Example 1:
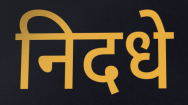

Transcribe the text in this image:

निदधे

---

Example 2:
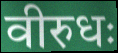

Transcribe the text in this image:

वीरुधः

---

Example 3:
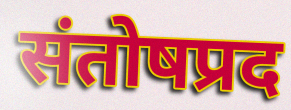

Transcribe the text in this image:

संतोषप्रद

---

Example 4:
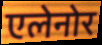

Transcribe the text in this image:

एलेनोर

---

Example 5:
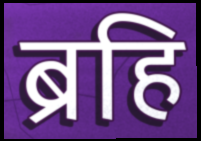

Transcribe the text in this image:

ब्रहि